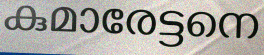
കുമാരേട്ടനെ